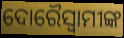
ଦୋରୈସ୍ବାମୀଙ୍କ